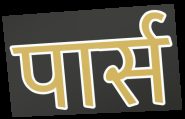
पार्स